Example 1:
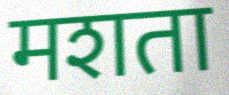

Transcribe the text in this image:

मशता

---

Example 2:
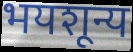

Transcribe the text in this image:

भयशून्य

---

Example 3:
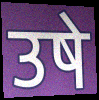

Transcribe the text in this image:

उषे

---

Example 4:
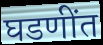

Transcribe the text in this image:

घडणींत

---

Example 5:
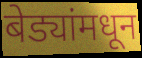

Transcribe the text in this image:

बेड्यांमधून